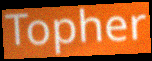
Topher